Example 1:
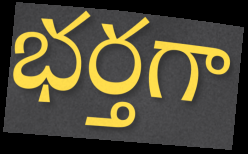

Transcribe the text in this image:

భర్తగా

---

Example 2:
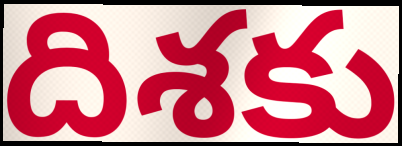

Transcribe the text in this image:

దిశకు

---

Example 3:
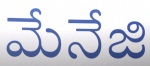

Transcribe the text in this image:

మేనేజి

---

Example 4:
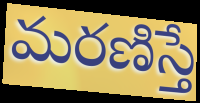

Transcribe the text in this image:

మరణిస్తే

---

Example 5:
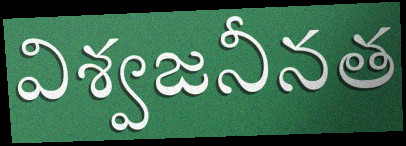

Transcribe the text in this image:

విశ్వజనీనత